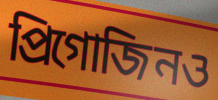
প্রিগোজিনও